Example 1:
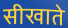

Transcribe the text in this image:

सीखाते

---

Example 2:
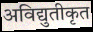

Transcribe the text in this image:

अविद्युतीकृत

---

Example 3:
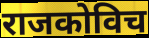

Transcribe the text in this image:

राजकोविच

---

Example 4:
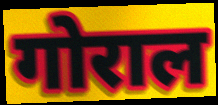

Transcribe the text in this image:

गोराल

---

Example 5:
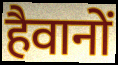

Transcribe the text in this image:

हैवानों